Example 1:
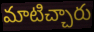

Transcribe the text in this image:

మాటిచ్చారు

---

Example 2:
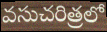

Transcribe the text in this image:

వసుచరిత్రలో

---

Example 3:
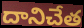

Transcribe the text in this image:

దానిచేత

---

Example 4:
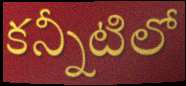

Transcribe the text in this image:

కన్నీటిలో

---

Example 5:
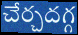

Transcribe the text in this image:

చేర్చదగ్గ